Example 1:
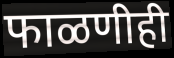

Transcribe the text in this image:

फाळणीही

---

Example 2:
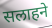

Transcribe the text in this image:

सलाहने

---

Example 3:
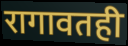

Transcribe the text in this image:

रागावतही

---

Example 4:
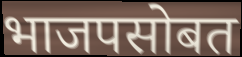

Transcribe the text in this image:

भाजपसोबत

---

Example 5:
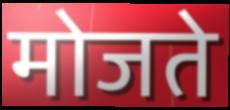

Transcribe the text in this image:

मोजते